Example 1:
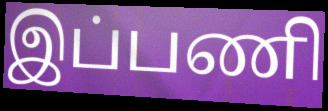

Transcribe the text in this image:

இப்பணி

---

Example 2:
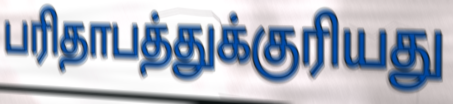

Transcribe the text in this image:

பரிதாபத்துக்குரியது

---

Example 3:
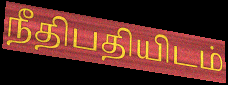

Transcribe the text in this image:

நீதிபதியிடம்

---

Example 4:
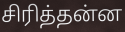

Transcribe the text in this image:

சிரித்தன்ன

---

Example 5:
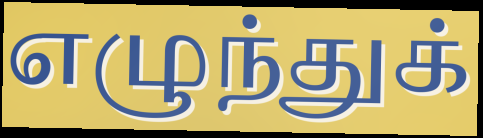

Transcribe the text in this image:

எழுந்துக்